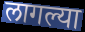
लागल्‍या